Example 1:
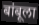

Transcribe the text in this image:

बांबूला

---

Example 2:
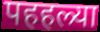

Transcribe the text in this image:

पहहल्या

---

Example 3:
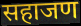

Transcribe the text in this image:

सहाजण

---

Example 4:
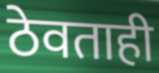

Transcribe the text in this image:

ठेवताही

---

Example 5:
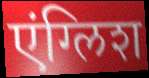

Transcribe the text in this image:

एंग्लिश